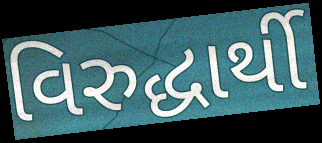
વિરુદ્ધાર્થી